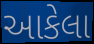
આકેલા